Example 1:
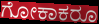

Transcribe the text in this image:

ಗೋಕಾಕರೂ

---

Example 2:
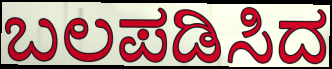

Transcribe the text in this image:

ಬಲಪಡಿಸಿದ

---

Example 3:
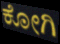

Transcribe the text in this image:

ಕೋಗಿ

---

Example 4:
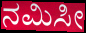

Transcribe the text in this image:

ನಮಿಸೀ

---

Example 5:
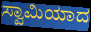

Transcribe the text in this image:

ಸ್ವಾಮಿಯಾದ